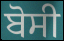
ਬੋਸੀ